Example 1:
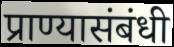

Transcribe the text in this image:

प्राण्यासंबंधी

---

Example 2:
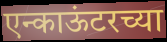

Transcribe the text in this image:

एन्काऊंटरच्या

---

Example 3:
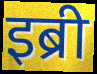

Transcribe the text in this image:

इब्री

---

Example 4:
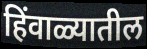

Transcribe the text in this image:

हिंवाळ्यातील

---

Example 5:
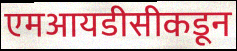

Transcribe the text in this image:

एमआयडीसीकडून